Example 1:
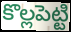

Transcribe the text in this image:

కొల్లపెట్టి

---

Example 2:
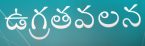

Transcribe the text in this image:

ఉగ్రతవలన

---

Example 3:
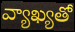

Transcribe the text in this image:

వ్యాఖ్యతో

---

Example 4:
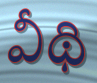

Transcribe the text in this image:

వీథి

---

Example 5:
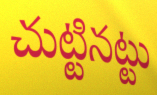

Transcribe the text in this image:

చుట్టినట్టు